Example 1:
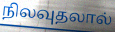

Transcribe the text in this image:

நிலவுதலால்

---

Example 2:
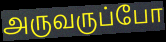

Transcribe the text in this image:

அருவருப்போ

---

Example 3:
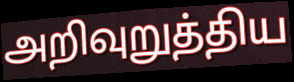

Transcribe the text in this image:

அறிவுறுத்திய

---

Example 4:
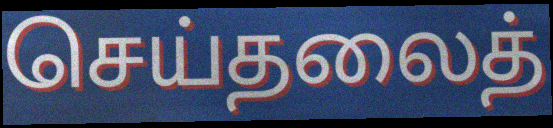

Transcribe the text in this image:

செய்தலைத்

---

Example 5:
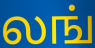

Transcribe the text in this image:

லங்